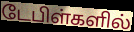
டேபிள்களில்